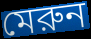
মেরুন